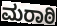
ಮರಾಠಿ